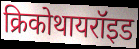
क्रिकोथायरॉइड